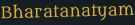
Bharatanatyam